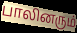
பாலினரும்